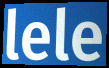
lele